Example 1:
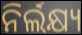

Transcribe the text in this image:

ନିର୍ଲକ୍ଷ୍ୟ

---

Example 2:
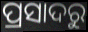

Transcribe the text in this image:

ପ୍ରସାଦରୁ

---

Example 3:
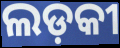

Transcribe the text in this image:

ଲଡ଼କୀ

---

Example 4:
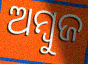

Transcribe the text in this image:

ଅମ୍ବୁଜ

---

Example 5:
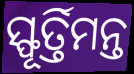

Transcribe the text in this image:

ସ୍ଫୂର୍ତ୍ତିମନ୍ତ